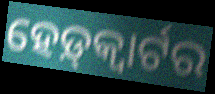
ହେଡ଼୍‌କ୍ୱାର୍ଟର